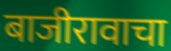
बाजीरावाचा